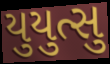
યુયુત્સુ